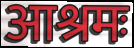
आश्रमः